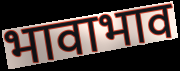
भावाभाव